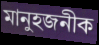
মানুহজনীক